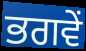
ਭਗਵੇਂ